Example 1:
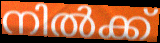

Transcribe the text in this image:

നിൽക്ക്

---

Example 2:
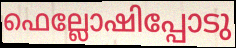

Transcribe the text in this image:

ഫെല്ലോഷിപ്പോടു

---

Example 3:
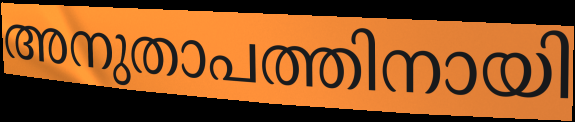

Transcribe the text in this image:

അനുതാപത്തിനായി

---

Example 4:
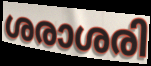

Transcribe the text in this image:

ശരാശരി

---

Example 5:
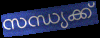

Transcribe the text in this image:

സന്ധ്യക്ക്